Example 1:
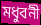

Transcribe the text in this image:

মধুবনী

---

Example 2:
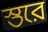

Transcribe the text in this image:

স্তরে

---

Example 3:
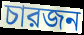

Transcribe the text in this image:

চারজন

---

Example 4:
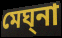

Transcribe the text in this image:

মেঘ্‌না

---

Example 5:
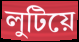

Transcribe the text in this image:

লুটিয়ে